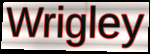
Wrigley